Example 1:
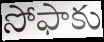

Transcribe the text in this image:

సోఫాకు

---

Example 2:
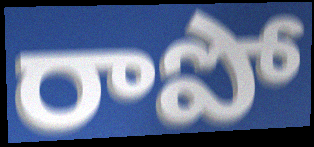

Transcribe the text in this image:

రాపో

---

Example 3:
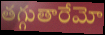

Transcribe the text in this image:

తగ్గుతారేమో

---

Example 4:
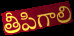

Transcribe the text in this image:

తీపిగాలి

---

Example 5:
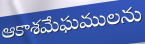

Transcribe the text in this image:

ఆకాశమేఘములను